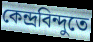
কেন্দ্রবিন্দুতে